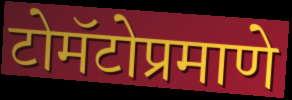
टोमॅटोप्रमाणे